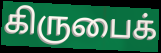
கிருபைக்